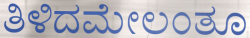
ತಿಳಿದಮೇಲಂತೂ